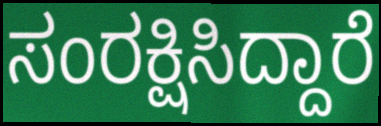
ಸಂರಕ್ಷಿಸಿದ್ದಾರೆ